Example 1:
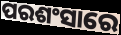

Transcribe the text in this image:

ପରଶଂସାରେ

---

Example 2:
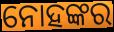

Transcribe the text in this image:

ନୋହଙ୍କର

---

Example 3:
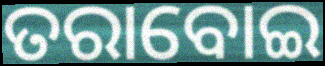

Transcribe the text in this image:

ତରାବୋଇ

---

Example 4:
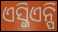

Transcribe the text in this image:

ଏସ୍ଜିଏନ୍ପି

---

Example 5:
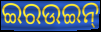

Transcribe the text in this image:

ଇରଉଇନ୍